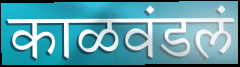
काळवंडलं